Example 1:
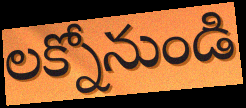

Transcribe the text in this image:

లక్నోనుండి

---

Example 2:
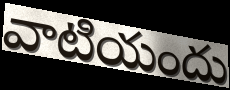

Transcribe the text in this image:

వాటియందు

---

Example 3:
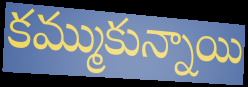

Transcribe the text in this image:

కమ్ముకున్నాయి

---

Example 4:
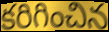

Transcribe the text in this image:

కరిగించిన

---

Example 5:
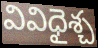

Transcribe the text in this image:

వివిధైశ్చ